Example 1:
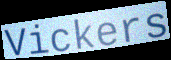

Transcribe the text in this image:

Vickers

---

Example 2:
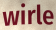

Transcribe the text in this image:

wirle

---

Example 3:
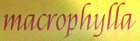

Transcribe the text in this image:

macrophylla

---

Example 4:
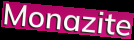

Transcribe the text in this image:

Monazite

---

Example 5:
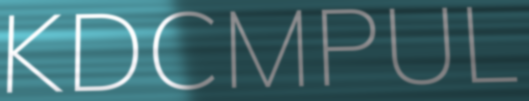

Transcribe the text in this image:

KDCMPUL